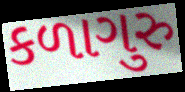
કળાગુરુ